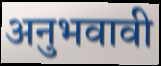
अनुभवावी